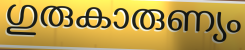
ഗുരുകാരുണ്യം